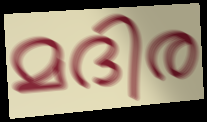
മദിര